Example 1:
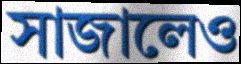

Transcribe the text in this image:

সাজালেও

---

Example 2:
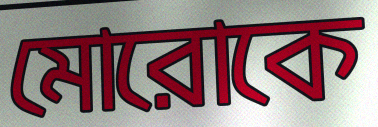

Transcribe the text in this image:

মোরোকে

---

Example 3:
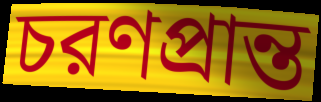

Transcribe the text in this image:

চরণপ্রান্ত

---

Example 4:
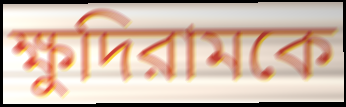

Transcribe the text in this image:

ক্ষুদিরামকে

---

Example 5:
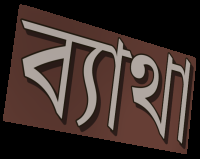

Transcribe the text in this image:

ব্যাথা